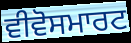
ਵੀਵੋਸਮਾਰਟ